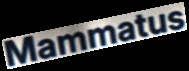
Mammatus